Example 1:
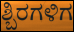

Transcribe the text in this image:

ಶ್ಬಿರಗಳಿಗ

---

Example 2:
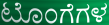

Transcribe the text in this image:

ಟೊಂಗೆಗಳ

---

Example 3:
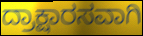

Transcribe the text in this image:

ದ್ರಾಕ್ಷಾರಸವಾಗಿ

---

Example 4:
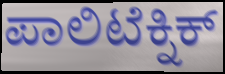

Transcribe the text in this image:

ಪಾಲಿಟೆಕ್ನಿಕ್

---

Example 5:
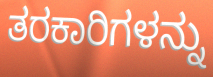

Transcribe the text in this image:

ತರಕಾರಿಗಳನ್ನು